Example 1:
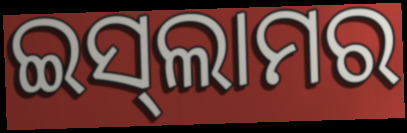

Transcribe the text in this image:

ଇସ୍‍ଲାମର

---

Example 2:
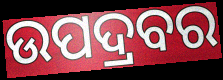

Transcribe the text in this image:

ଉପଦ୍ରବର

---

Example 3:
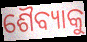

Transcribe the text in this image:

ଶୈବ୍ୟାକୁ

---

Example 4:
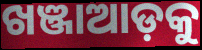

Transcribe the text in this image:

ଖଞ୍ଜାଆଡ଼କୁ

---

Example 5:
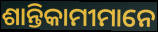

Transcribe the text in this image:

ଶାନ୍ତିକାମୀମାନେ